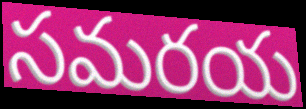
సమరయ